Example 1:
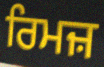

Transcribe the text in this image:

ਰਿਮਜ਼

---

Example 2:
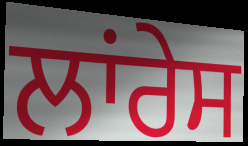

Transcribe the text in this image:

ਲਾਂਰੇਸ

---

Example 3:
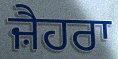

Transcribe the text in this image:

ਜ਼ੈਹਰਾ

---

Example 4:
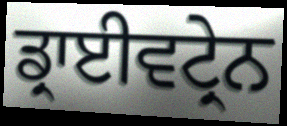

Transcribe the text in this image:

ਡ੍ਰਾਈਵਟ੍ਰੇਨ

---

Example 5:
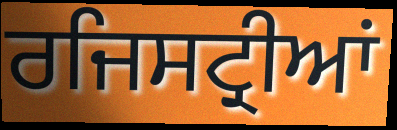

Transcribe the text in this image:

ਰਜਿਸਟ੍ਰੀਆਂ